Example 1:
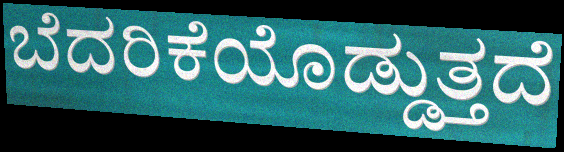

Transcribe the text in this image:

ಬೆದರಿಕೆಯೊಡ್ಡುತ್ತದೆ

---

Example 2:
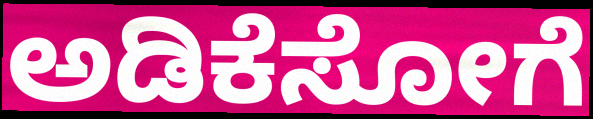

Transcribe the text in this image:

ಅಡಿಕೆಸೋಗೆ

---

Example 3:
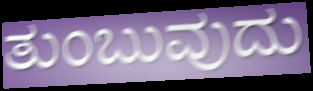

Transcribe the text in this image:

ತುಂಬುವುದು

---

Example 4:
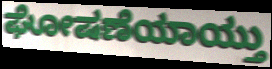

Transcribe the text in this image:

ಘೋಷಣೆಯಾಯ್ತು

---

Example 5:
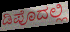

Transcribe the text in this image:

ಡಿಪೊದಲ್ಲಿ